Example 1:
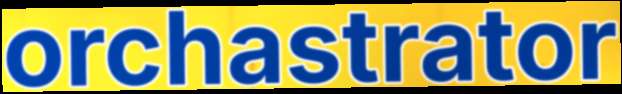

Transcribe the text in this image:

orchastrator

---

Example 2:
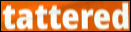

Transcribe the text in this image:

tattered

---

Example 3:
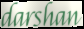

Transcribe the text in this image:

darshan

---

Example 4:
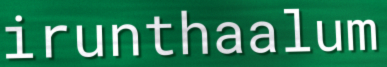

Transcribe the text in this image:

irunthaalum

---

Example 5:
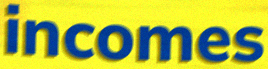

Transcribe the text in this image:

incomes